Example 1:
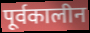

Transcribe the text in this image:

पूर्वकालीन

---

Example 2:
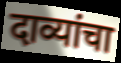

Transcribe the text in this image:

दाव्यांचा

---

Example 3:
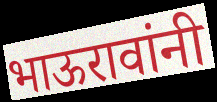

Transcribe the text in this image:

भाऊरावांनी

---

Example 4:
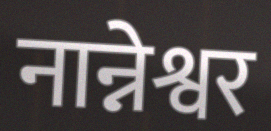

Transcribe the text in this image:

नान्नेश्वर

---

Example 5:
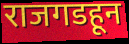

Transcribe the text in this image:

राजगडहून